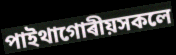
পাইথাগোৰীয়সকলে